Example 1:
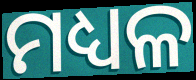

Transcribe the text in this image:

ମଧ୍ୟଳ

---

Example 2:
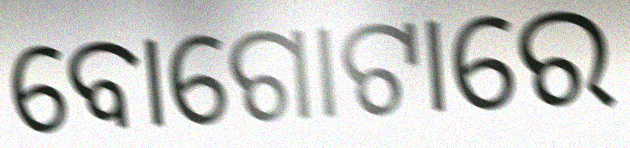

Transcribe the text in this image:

ବୋଗୋଟାରେ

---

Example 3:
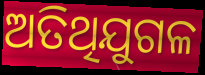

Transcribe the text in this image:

ଅତିଥିଯୁଗଳ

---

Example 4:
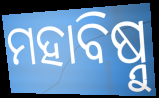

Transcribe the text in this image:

ମହାବିଷ୍ନୁ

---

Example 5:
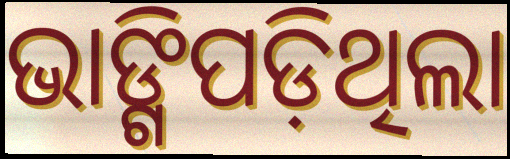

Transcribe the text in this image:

ଭାଙ୍ଗିପଡ଼ିଥିଲା